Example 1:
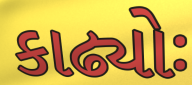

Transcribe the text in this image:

કાઢ્યોઃ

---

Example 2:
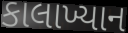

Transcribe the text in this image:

કાલાખ્યાન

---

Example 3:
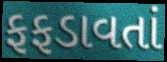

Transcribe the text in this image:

ફફડાવતાં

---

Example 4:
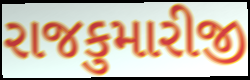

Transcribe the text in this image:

રાજકુમારીજી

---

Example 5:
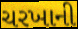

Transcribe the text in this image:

ચરખાની